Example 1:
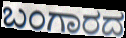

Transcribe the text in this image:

ಬಂಗಾರದ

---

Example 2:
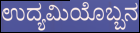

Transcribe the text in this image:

ಉದ್ಯಮಿಯೊಬ್ಬನ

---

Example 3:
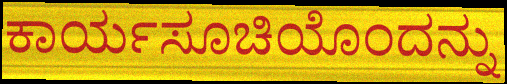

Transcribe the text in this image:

ಕಾರ್ಯಸೂಚಿಯೊಂದನ್ನು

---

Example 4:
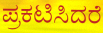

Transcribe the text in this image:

ಪ್ರಕಟಿಸಿದರೆ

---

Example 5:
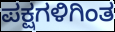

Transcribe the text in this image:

ಪಕ್ಷಗಳಿಗಿಂತ